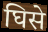
घिसे